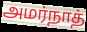
அமர்நாத்